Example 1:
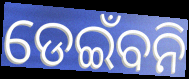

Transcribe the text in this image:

ଡେଇଁବନି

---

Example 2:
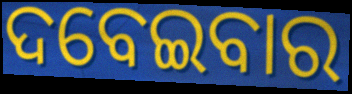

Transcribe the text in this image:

ଦବେଇବାର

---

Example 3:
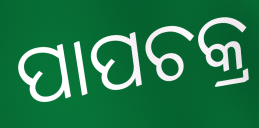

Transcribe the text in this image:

ପାପଚକ୍ର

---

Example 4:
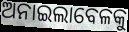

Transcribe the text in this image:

ଅନାଇଲାବେଳକୁ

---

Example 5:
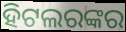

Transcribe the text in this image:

ହିଟଲରଙ୍କର